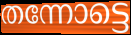
തന്നോട്ടെ